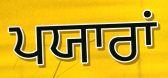
ਪਯਾਰਾਂ